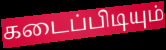
கடைப்பிடியும்